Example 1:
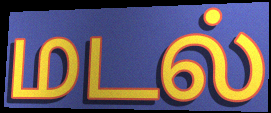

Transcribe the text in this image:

மடல்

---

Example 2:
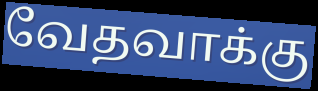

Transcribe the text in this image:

வேதவாக்கு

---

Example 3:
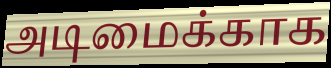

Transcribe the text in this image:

அடிமைக்காக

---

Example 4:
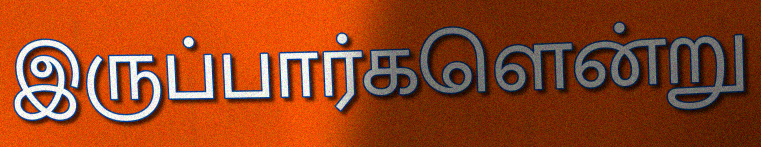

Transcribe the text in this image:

இருப்பார்களென்று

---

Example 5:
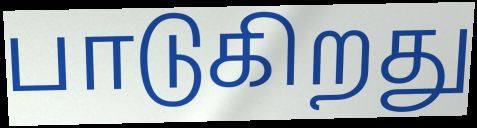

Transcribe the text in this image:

பாடுகிறது